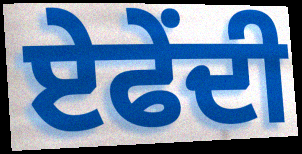
ਏਫੇਂਦੀ